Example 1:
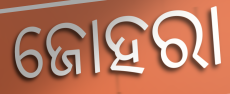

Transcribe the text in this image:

ଜୋହରା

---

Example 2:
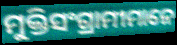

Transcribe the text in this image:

ମୁକ୍ତିସଂଗ୍ରାମୀମାନେ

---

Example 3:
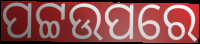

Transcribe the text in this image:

ପଟ୍ଟଉପରେ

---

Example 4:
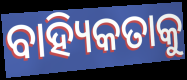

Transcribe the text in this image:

ବାହ୍ୟିକତାକୁ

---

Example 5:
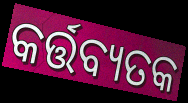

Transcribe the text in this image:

କର୍ତ୍ତବ୍ୟତକ